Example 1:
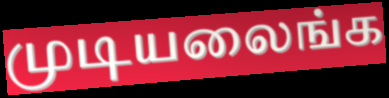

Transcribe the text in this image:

முடியலைங்க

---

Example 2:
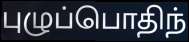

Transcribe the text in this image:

புழுப்பொதிந்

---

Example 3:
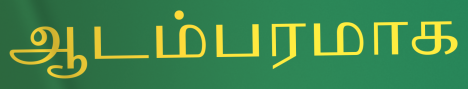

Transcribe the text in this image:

ஆடம்பரமாக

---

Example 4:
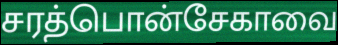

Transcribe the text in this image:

சரத்பொன்சேகாவை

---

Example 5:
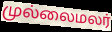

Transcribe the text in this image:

முல்லைமலர்